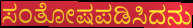
ಸಂತೋಷಪಡಿಸಿದನು